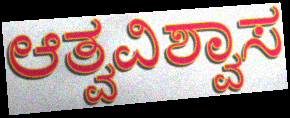
ಆತ್ವವಿಶ್ವಾಸ